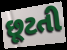
છૂટતી